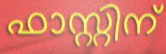
ഫാസ്റ്റിന്